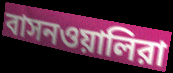
বাসনওয়ালিরা